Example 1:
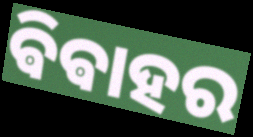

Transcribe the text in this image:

ଵିଵାହର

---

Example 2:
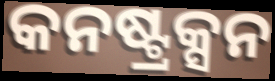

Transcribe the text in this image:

କନଷ୍ଟ୍ରକ୍ସନ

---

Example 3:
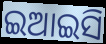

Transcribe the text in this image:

ଇଆଇସି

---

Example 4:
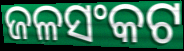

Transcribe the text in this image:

ଜଳସଂକଟ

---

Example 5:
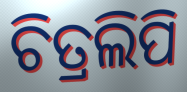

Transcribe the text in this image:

ଚିତ୍ରଲିପି